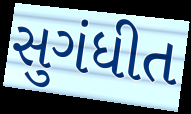
સુગંધીત